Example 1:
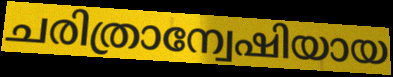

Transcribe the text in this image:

ചരിത്രാന്വേഷിയായ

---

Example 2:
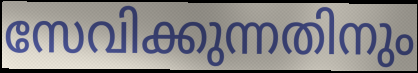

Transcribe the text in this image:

സേവിക്കുന്നതിനും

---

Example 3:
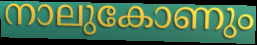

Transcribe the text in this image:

നാലുകോണും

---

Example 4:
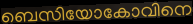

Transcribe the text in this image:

ബെസിയോകോവിനെ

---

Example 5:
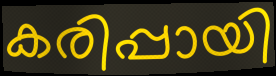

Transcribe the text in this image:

കരിപ്പായി